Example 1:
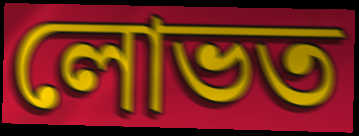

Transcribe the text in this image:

লোভত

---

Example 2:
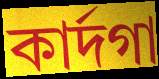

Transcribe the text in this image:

কাৰ্দগা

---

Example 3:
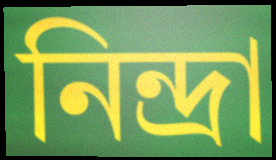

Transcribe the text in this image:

নিন্দ্ৰা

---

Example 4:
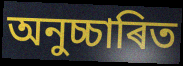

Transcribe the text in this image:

অনুচ্চাৰিত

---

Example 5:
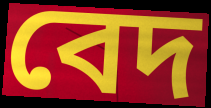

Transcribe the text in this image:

বেদ